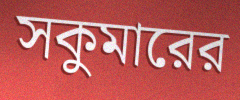
সকুমারের